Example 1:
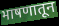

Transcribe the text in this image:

भाषणातून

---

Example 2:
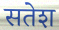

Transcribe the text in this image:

सतेश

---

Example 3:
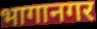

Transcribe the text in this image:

भागानगर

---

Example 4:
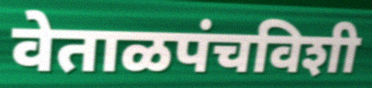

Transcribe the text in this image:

वेताळपंचविशी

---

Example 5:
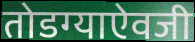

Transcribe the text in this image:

तोडग्याऐवजी